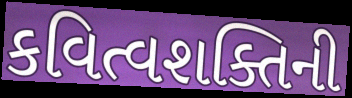
કવિત્વશક્તિની